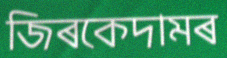
জিৰকেদামৰ